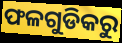
ଫଳଗୁଡିକରୁ